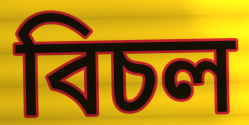
বিচল